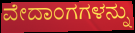
ವೇದಾಂಗಗಳನ್ನು